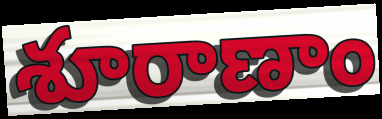
శూరాణాం